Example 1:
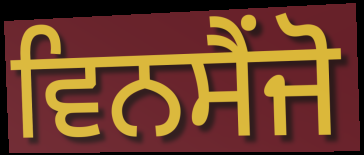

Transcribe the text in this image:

ਵਿਨਸੈਂਜੋ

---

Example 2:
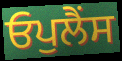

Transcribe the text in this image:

ਓਪੁਲੈਂਸ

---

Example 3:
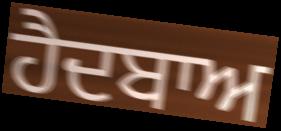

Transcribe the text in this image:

ਹੈਦਬਾਅ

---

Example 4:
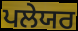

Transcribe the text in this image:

ਪਲੇਯਰ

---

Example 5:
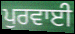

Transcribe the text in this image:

ਪੁਰਵਾਈ